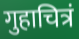
गुहाचित्रं